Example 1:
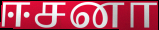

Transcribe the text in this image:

ஈசனா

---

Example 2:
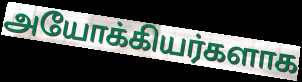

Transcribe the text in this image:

அயோக்கியர்களாக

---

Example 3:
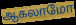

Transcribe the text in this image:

ஆகலாமோ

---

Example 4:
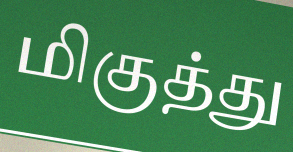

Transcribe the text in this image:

மிகுத்து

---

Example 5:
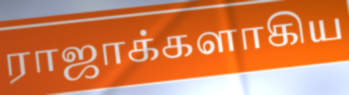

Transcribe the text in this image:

ராஜாக்களாகிய